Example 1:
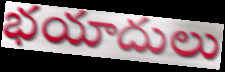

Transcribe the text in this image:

భయాదులు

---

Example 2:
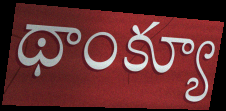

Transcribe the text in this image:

థాంక్యూ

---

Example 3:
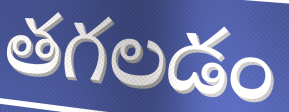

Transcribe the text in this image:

తగలడం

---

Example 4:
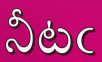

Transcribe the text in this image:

నీటఁ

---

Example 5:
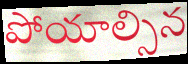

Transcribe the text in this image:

పోయాల్సిన